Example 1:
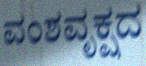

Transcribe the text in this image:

ವಂಶವೃಕ್ಷದ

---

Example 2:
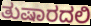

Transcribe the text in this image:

ತುಷಾರದಲಿ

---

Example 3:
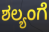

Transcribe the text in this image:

ಶಲ್ಯಂಗೆ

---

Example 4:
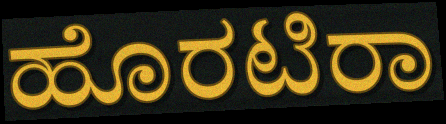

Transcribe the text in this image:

ಹೊರಟಿರಾ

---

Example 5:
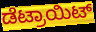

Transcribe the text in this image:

ಡೆಟ್ರಾಯಿಟ್